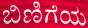
ಬಿಣಿಗೆಯ